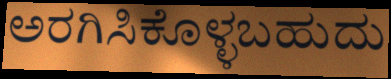
ಅರಗಿಸಿಕೊಳ್ಳಬಹುದು